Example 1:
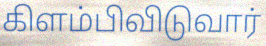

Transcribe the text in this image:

கிளம்பிவிடுவார்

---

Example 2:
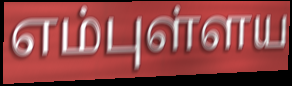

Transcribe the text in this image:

எம்புள்ளய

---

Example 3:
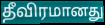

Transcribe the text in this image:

தீவிரமானது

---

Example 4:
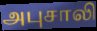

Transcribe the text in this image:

அபுசாலி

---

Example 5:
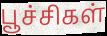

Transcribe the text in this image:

பூச்சிகள்